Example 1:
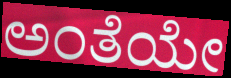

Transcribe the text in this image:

ಅಂತೆಯೇ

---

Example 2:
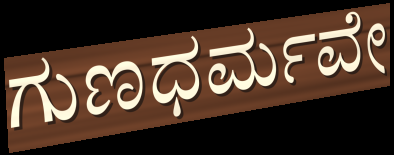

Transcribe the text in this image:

ಗುಣಧರ್ಮವೇ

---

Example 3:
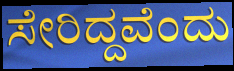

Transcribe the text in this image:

ಸೇರಿದ್ದವೆಂದು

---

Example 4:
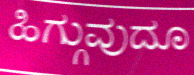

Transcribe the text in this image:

ಹಿಗ್ಗುವುದೂ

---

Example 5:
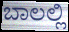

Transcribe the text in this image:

ಬಾಲಲ್ಲಿ